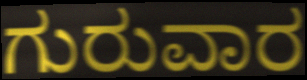
ಗುರುವಾರ